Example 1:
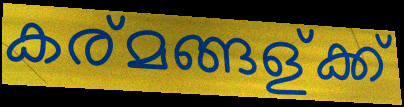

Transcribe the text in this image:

കര്മങ്ങള്ക്ക്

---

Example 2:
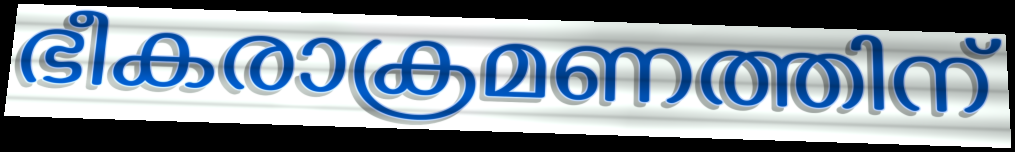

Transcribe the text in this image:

ഭീകരാക്രമണത്തിന്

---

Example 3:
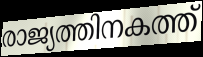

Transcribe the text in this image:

രാജ്യത്തിനകത്ത്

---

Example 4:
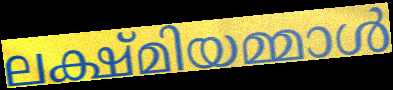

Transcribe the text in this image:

ലക്ഷ്മിയമ്മാൾ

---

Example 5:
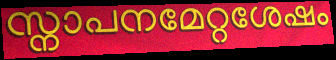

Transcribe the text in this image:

സ്നാപനമേറ്റശേഷം